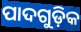
ପାଦଗୁଡ଼ିକ